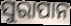
ସୁରାପାନ